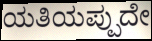
ಯತಿಯಪ್ಪುದೇ